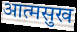
आत्मसुख